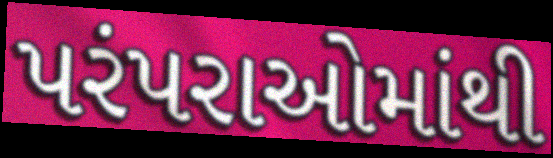
પરંપરાઓમાંથી